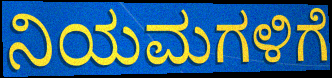
ನಿಯಮಗಳಿಗೆ